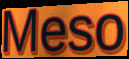
Meso